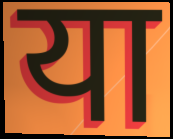
या